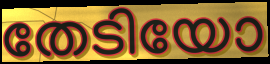
തേടിയോ